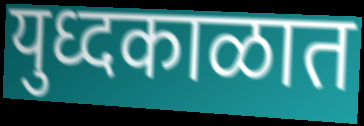
युध्दकाळात